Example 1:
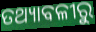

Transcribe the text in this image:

ତଥ୍ୟାବଳୀରୁ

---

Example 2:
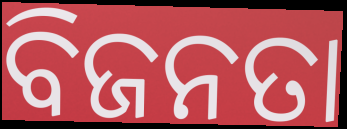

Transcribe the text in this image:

ବିଜନତା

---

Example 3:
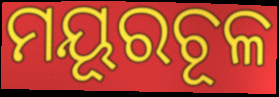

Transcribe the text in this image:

ମୟୂରଚୂଳ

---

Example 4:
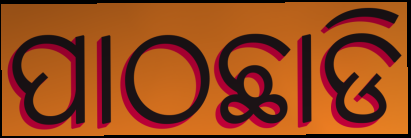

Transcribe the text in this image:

ପାଠଛାଡି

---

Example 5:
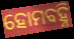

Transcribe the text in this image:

ହୋମବହ୍ନି